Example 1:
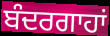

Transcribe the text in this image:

ਬੰਦਰਗਾਹਾਂ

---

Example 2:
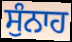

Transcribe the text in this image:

ਸੁੰਨਾਹ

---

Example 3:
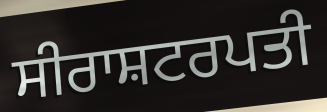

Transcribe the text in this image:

ਸੀਰਾਸ਼ਟਰਪਤੀ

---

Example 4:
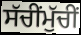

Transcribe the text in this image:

ਸੱਚੀਂਮੁੱਚੀਂ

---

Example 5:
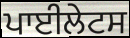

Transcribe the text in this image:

ਪਾਈਲੇਟਸ